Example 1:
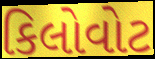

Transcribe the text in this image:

કિલોવોટ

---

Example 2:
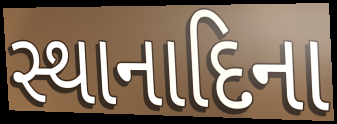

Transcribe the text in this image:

સ્થાનાદિના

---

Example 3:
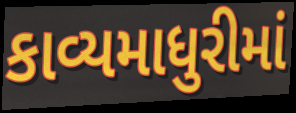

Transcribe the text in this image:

કાવ્યમાધુરીમાં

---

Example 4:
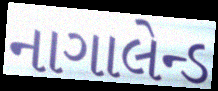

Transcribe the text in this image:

નાગાલેન્ડ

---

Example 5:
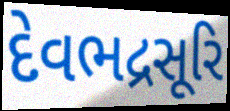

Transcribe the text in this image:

દેવભદ્રસૂરિ